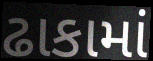
ઢાકામાં